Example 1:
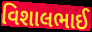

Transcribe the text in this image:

વિશાલભાઈ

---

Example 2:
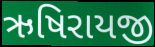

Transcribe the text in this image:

ઋષિરાયજી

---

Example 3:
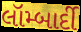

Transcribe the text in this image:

લૉમ્બાર્દી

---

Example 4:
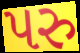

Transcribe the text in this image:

પરુ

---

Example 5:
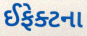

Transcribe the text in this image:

ઈફેક્ટના